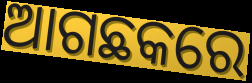
ଆଗଛକରେ